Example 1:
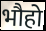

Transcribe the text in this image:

भौहो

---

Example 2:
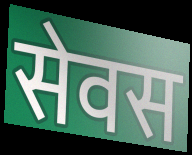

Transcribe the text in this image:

सेवस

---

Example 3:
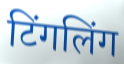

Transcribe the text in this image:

टिंगलिंग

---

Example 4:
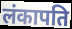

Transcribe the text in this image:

लंकापति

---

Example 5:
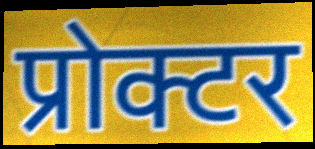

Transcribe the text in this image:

प्रोक्टर